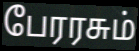
பேரரசும்